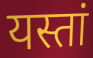
यस्तां